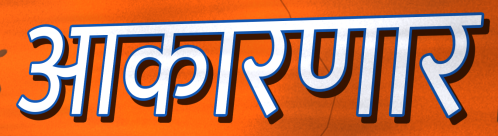
आकारणार